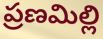
ప్రణమిల్లి